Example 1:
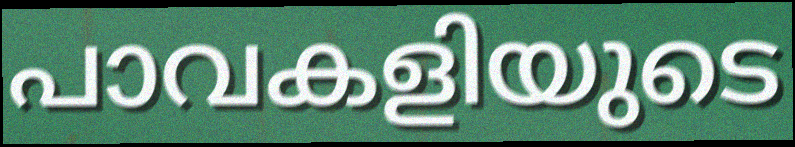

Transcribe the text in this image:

പാവകളിയുടെ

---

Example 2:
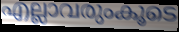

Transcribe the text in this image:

എല്ലാവരുംകൂടെ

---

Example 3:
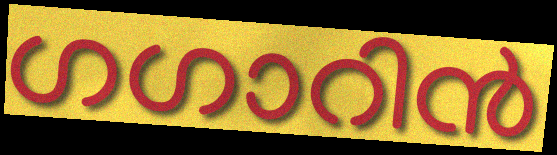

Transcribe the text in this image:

ഗഗാറിൻ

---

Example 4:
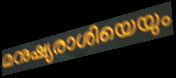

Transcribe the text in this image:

മനുഷ്യരാശിയെയും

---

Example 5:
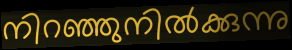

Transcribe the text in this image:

നിറഞ്ഞുനിൽക്കുന്നു